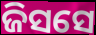
ଜିସସେ